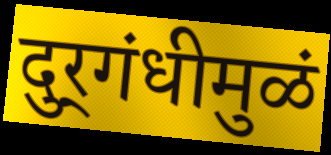
दुर्गंधीमुळं